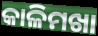
କାଳିମଖା